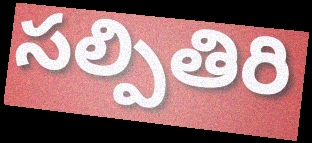
సల్పితిరి